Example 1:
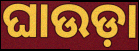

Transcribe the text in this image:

ଘାଉଡ଼ା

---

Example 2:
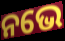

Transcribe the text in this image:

ନଭେ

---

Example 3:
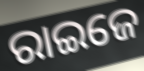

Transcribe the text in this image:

ରାଇଜେ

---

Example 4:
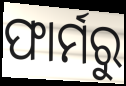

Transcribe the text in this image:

ଫାର୍ମରୁ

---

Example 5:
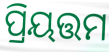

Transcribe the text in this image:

ପ୍ରିୟତ୍ତମ